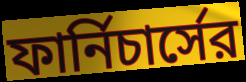
ফার্নিচার্সের